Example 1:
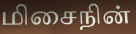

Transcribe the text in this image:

மிசைநின்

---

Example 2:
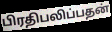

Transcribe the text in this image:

பிரதிபலிப்பதன்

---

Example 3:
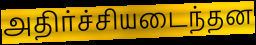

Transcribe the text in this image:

அதிர்ச்சியடைந்தன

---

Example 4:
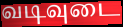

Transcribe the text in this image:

வடிவுடை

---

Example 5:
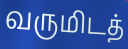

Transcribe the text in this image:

வருமிடத்